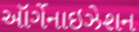
ઑર્ગેનાઇઝેશન